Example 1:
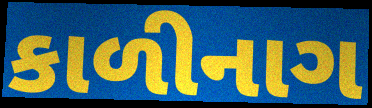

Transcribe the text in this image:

કાળીનાગ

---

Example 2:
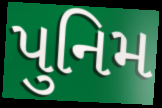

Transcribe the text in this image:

પુનિમ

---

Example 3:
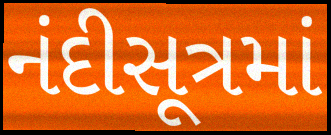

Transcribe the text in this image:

નંદીસૂત્રમાં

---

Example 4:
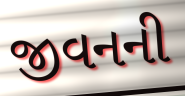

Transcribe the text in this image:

જીવનની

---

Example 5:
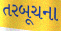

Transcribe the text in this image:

તરબૂચના